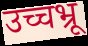
उच्चभ्रू